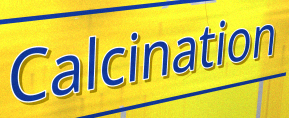
Calcination